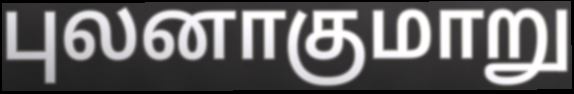
புலனாகுமாறு